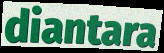
diantara